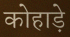
कोहाड़े